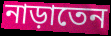
নাড়াতেন